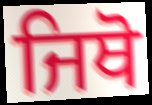
ਜਿਥੋ